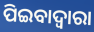
ପିଇବାଦ୍ଵାରା